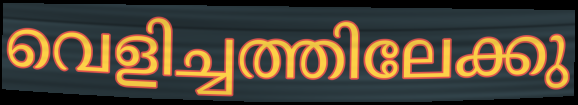
വെളിച്ചത്തിലേക്കു